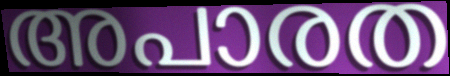
അപാരത